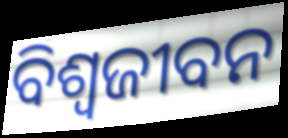
ବିଶ୍ଵଜୀବନ